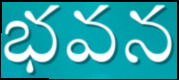
భవన